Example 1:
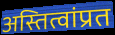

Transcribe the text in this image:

अस्तित्वांप्रत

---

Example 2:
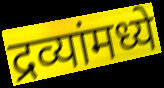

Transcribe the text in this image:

द्रव्यांमध्ये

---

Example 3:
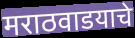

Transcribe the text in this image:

मराठवाडयाचे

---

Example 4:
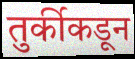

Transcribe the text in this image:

तुर्कीकडून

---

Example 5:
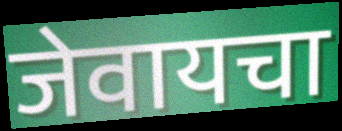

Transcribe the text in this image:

जेवायचा